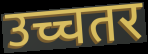
उच्चतर